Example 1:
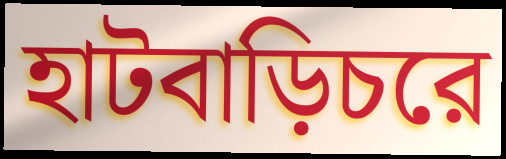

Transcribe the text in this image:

হাটবাড়িচরে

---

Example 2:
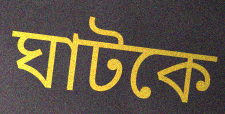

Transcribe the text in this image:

ঘাটকে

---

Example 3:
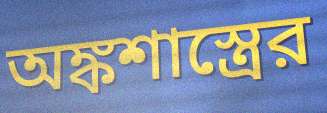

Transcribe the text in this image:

অঙ্কশাস্ত্রের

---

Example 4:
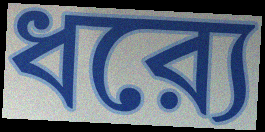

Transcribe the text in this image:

ধর‍্যে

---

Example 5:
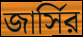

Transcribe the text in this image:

জার্সির